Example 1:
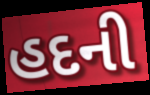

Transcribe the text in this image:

હદની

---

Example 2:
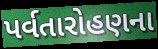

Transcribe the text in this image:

પર્વતારોહણના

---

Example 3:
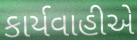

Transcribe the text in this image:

કાર્યવાહીએ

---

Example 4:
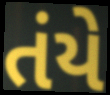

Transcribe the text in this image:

તંયે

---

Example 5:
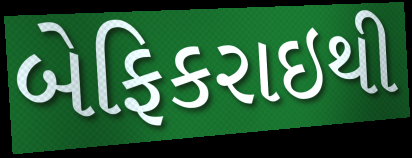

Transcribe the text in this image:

બેફિકરાઇથી